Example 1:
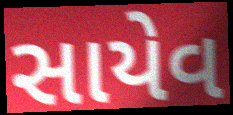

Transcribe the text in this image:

સાયેવ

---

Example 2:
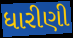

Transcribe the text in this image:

ધારીણી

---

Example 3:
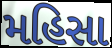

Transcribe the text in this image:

મહિસા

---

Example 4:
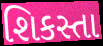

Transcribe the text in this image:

શિકસ્તા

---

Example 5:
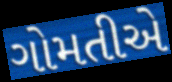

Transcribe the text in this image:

ગોમતીએ